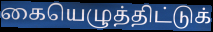
கையெழுத்திட்டுக்